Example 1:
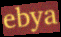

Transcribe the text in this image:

ebya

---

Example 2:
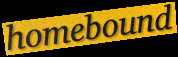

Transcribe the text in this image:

homebound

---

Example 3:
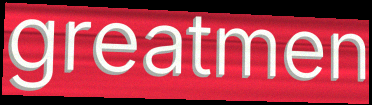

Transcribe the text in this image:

greatmen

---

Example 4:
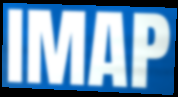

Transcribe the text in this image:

IMAP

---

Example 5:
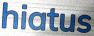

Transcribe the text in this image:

hiatus